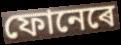
ফোনেৰে